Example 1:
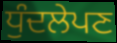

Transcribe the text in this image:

ਧੁੰਦਲੇਪਣ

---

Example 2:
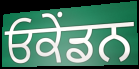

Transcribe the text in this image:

ਓਕੇਂਡਨ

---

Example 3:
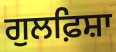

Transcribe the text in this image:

ਗੁਲਫ਼ਿਸ਼ਾ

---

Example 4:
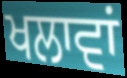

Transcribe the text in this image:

ਖਲਾਵਾਂ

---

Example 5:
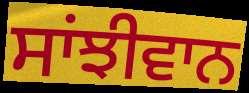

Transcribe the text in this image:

ਸਾਂਝੀਵਾਨ